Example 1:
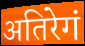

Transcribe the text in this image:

अतिरेगं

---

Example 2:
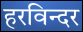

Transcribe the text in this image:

हरविन्दर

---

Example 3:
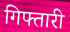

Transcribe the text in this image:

गिफ्तारी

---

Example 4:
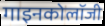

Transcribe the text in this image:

गाइनकोलॉजी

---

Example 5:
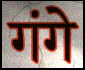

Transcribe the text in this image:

गंगे